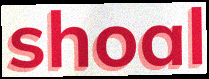
shoal